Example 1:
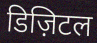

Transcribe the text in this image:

डिज़िटल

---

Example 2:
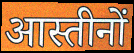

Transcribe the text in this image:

आस्तीनों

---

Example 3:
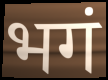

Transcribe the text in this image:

भगं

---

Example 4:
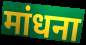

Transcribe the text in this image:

मांधना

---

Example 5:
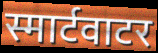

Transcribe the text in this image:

स्मार्टवाटर